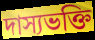
দাস্যভক্তি